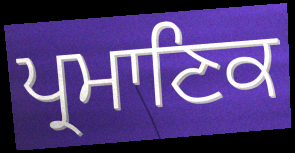
ਪ੍ਰਮਾਣਿਕ